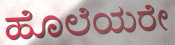
ಹೊಲೆಯರೇ